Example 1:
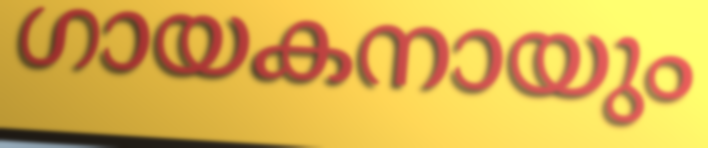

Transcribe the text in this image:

ഗായകനായും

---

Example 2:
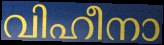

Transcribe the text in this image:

വിഹീനാ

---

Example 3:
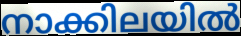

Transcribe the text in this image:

നാക്കിലയിൽ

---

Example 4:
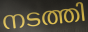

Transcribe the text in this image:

നടത്തി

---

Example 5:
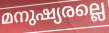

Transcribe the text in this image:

മനുഷ്യരല്ലെ